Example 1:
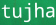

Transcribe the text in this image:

tujha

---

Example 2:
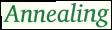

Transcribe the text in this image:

Annealing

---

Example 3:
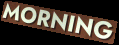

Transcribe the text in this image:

MORNING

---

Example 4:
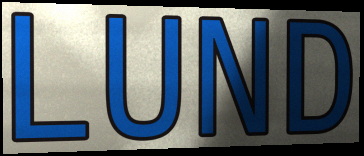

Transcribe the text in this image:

LUND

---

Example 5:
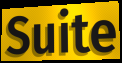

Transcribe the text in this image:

Suite